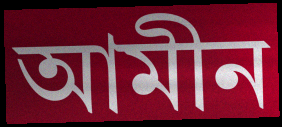
আমীন